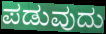
ಪಡುವುದು